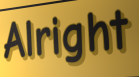
Alright